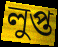
লুপ্ত